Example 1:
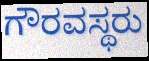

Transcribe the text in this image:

ಗೌರವಸ್ಥರು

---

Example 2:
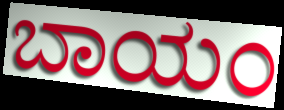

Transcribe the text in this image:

ಬಾಯಂ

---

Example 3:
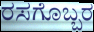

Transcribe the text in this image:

ರಸಗೊಬ್ಬರ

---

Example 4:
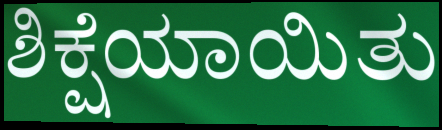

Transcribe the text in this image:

ಶಿಕ್ಷೆಯಾಯಿತು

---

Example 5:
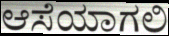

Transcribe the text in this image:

ಆಸೆಯಾಗಲಿ